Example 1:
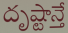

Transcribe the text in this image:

దృష్టాన్తే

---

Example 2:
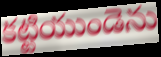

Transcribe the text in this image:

కట్టియుండెను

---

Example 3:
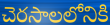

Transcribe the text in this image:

చెరసాలలోనికి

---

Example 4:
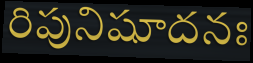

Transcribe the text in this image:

రిపునిషూదనః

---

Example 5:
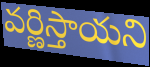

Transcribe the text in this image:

వర్ణిస్తాయని